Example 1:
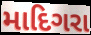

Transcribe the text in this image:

માદિગરા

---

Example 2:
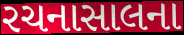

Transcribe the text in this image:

રચનાસાલના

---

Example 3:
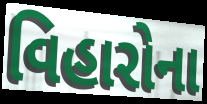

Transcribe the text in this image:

વિહારોના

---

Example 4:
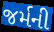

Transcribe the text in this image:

જર્મની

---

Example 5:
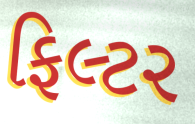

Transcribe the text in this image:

ફિલ્ટર